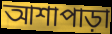
আশাপাড়া